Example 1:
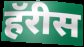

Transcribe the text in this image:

हॅरीस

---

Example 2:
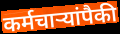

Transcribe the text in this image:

कर्मचार्‍यांपैकी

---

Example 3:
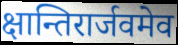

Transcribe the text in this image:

क्षान्तिरार्जवमेव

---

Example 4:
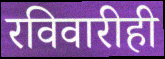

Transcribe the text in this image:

रविवारीही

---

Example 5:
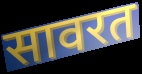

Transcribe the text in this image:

सावरत